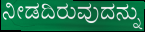
ನೀಡದಿರುವುದನ್ನು